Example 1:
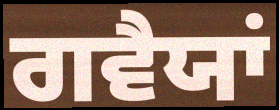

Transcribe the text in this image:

ਗਵੈਯਾਂ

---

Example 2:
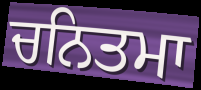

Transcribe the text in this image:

ਚਨਿਤਮਾ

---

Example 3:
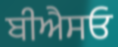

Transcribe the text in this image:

ਬੀਐਸਓ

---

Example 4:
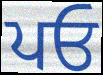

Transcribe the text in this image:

ਪਓ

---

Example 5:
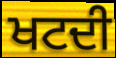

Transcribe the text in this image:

ਖਟਦੀ